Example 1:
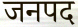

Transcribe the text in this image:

जनपद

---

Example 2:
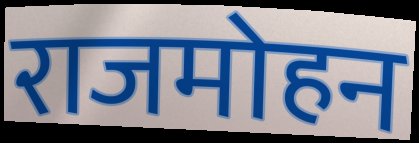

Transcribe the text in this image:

राजमोहन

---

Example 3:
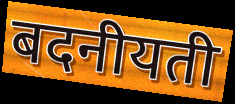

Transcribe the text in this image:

बदनीयती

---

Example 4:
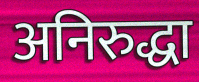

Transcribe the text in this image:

अनिरुद्धा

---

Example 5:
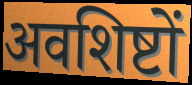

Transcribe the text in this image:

अवशिष्टों